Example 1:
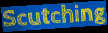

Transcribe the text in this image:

Scutching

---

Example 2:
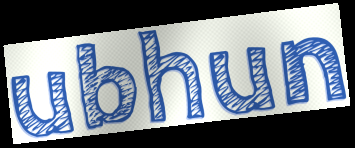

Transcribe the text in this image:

ubhun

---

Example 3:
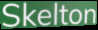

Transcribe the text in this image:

Skelton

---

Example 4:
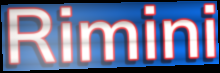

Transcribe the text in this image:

Rimini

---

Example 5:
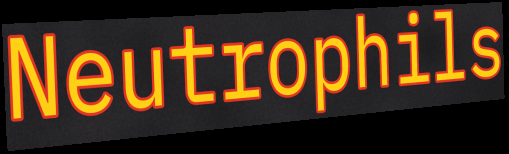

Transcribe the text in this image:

Neutrophils